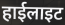
हाईलाइट